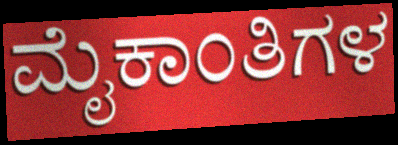
ಮೈಕಾಂತಿಗಳ